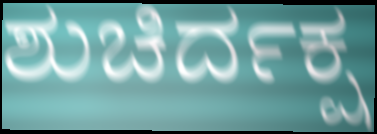
ಶುಚಿರ್ದಕ್ಷ